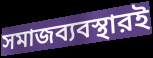
সমাজব্যবস্থারই